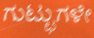
ಗುಟ್ಟುಗಳೇ